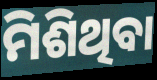
ମିଶିଥିବା